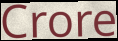
Crore